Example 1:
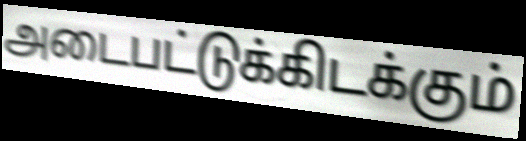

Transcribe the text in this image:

அடைபட்டுக்கிடக்கும்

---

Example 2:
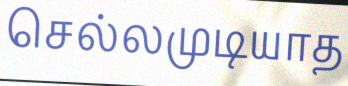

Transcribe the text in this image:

செல்லமுடியாத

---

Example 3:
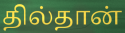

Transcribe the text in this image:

தில்தான்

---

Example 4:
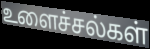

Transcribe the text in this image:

உளைச்சல்கள்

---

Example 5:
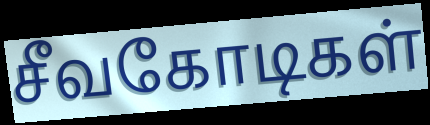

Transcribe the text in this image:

சீவகோடிகள்